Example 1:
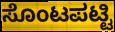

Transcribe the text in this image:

ಸೊಂಟಪಟ್ಟಿ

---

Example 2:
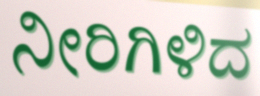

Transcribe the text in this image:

ನೀರಿಗಿಳಿದ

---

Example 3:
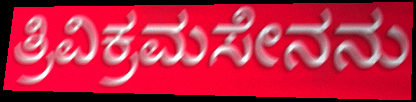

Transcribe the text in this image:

ತ್ರಿವಿಕ್ರಮಸೇನನು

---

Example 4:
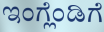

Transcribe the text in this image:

ಇಂಗ್ಲೆಂಡಿಗೆ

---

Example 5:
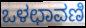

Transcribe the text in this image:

ಒಳಛಾವಣಿ